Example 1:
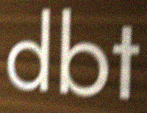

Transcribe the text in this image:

dbt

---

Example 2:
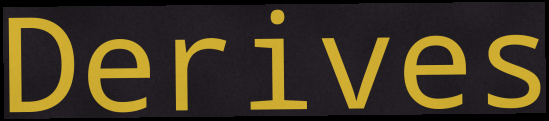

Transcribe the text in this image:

Derives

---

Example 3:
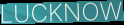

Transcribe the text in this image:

LUCKNOW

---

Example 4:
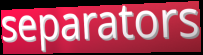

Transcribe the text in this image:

separators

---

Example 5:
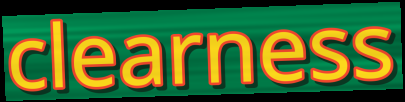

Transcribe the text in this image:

clearness